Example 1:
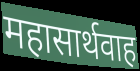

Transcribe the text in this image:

महासार्थवाह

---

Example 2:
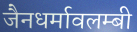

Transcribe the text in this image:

जैनधर्मावलम्बी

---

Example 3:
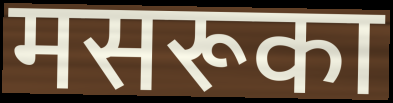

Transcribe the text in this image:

मसरूका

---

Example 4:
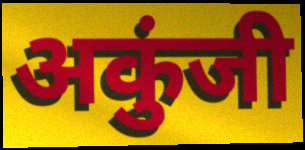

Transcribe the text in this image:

अकुंजी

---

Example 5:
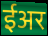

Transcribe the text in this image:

ईअर